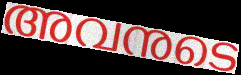
അവനുടെ